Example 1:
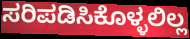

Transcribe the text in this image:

ಸರಿಪಡಿಸಿಕೊಳ್ಳಲಿಲ್ಲ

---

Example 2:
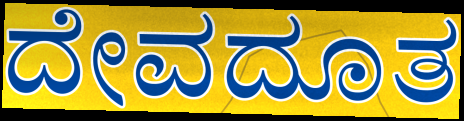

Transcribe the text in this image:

ದೇವದೂತ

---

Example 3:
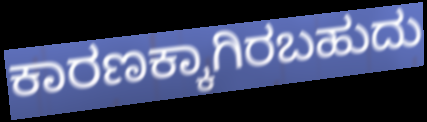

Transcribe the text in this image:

ಕಾರಣಕ್ಕಾಗಿರಬಹುದು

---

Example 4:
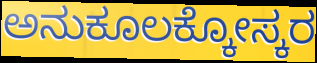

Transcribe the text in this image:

ಅನುಕೂಲಕ್ಕೋಸ್ಕರ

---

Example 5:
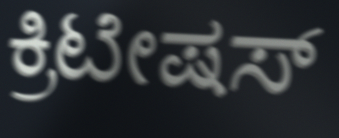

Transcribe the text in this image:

ಕ್ರಿಟೇಷಸ್